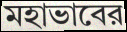
মহাভাবের